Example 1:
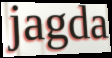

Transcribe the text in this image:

jagda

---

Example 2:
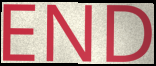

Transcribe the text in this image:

END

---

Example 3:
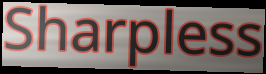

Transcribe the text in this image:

Sharpless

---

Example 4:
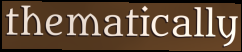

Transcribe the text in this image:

thematically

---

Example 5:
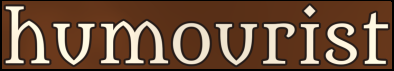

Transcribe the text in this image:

humourist